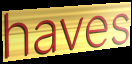
haves